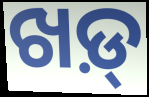
ଖଡ଼୍